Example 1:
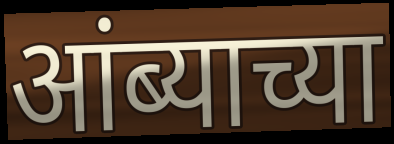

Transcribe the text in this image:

आंब्याच्या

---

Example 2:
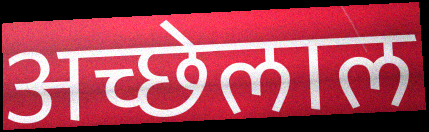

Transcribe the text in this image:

अच्छेलाल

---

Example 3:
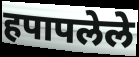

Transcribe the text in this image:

हपापलेले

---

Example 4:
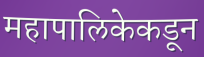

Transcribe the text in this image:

महापालिकेकडून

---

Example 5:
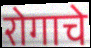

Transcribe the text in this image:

रोगाचे